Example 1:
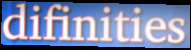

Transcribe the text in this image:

difinities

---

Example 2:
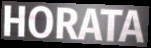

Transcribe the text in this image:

HORATA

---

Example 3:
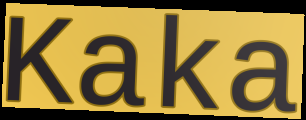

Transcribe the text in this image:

Kaka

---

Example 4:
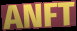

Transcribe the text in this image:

ANFT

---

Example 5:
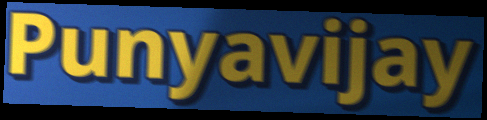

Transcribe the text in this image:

Punyavijay